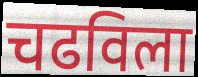
चढविला